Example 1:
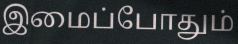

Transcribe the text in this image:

இமைப்போதும்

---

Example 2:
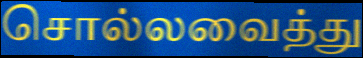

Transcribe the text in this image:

சொல்லவைத்து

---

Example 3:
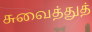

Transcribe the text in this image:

சுவைத்துத்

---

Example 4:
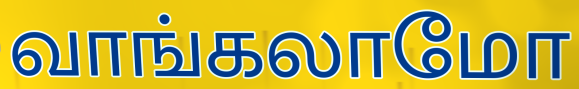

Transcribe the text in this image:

வாங்கலாமோ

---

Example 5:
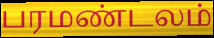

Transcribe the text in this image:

பரமண்டலம்